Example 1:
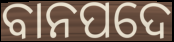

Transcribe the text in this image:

ବାନପଦେ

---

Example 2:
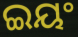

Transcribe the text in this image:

ଇୟଂ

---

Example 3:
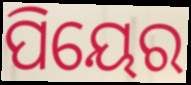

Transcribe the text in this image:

ପିୟେର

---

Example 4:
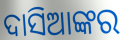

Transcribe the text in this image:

ଦାସିଆଙ୍କର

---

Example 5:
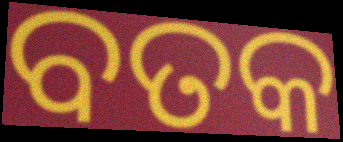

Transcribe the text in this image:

ବତକ